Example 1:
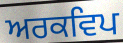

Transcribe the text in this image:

ਅਰਕਵਿਪ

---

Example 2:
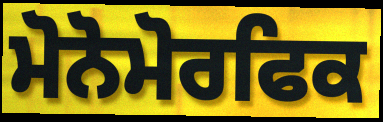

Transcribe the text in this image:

ਮੋਨੋਮੋਰਫਿਕ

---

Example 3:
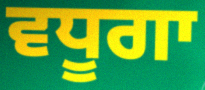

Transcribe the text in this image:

ਵਧੂਗਾ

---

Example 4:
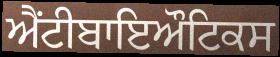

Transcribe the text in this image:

ਐਂਟੀਬਾਇਔਟਿਕਸ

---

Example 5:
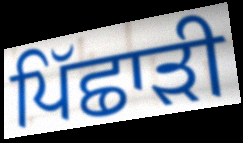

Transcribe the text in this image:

ਪਿੱਛਾੜੀ